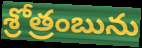
శ్రోత్రంబును